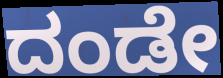
ದಂಡೇ